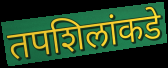
तपशिलांकडे